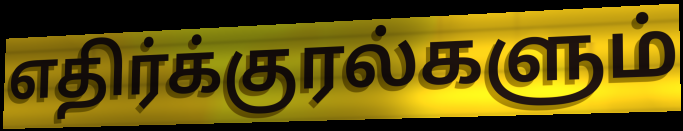
எதிர்க்குரல்களும்